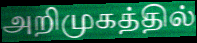
அறிமுகத்தில்